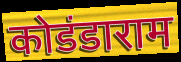
कोडंडाराम